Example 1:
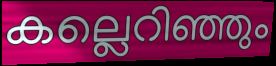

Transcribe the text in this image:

കല്ലെറിഞ്ഞും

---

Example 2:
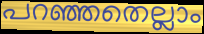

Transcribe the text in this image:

പറഞ്ഞതെല്ലാം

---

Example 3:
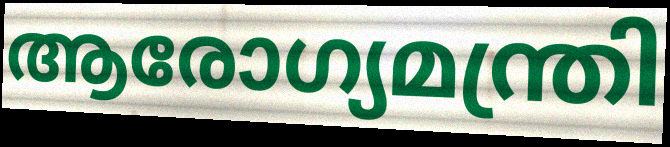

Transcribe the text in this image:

ആരോഗ്യമന്ത്രി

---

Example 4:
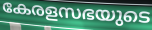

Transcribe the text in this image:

കേരളസഭയുടെ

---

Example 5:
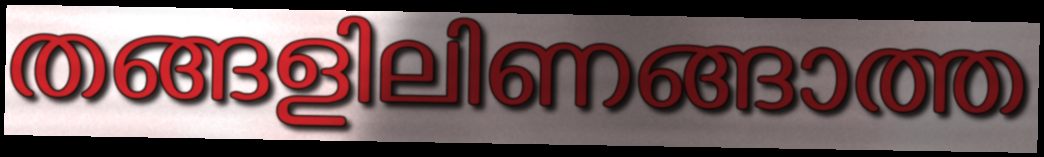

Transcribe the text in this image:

തങ്ങളിലിണങ്ങാത്ത